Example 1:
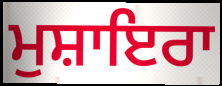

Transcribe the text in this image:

ਮੁਸ਼ਾਇਰਾ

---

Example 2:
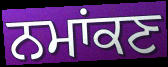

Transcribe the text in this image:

ਨਮਾਂਕਣ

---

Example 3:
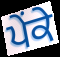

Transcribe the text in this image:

ਪੇਂਕੇ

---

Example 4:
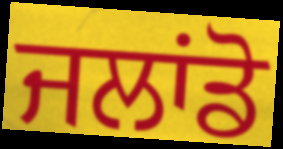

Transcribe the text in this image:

ਜਲਾਂਡੋ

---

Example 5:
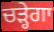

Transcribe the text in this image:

ਚੜ੍ਹੇਗਾ